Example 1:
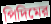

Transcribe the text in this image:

পিদিমের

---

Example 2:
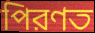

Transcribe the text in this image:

পিরণত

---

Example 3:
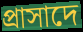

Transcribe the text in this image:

প্রাসাদে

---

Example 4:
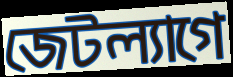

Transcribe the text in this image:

জেটল্যাগে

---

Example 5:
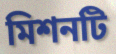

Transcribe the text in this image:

মিশনটি